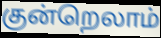
குன்றெலாம்